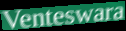
Venteswara